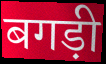
बगड़ी